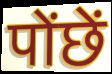
पोंछें